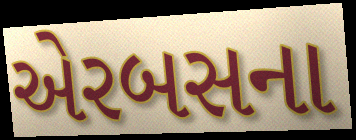
એરબસના